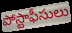
పోస్టాఫీసులు